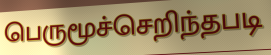
பெருமூச்செறிந்தபடி